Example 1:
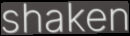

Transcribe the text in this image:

shaken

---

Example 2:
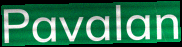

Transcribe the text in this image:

Pavalan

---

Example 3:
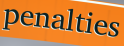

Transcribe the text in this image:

penalties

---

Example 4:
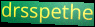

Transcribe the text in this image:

drsspethe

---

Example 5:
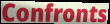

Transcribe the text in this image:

Confronts